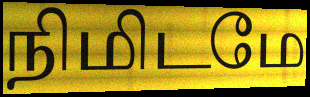
நிமிடமே